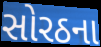
સોરઠના